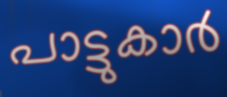
പാട്ടുകാർ